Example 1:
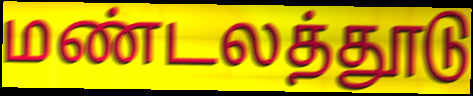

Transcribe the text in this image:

மண்டலத்தூடு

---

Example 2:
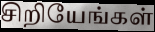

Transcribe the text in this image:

சிறியேங்கள்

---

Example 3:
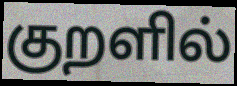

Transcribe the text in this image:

குறளில்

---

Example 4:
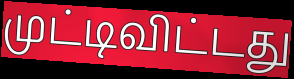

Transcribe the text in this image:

முட்டிவிட்டது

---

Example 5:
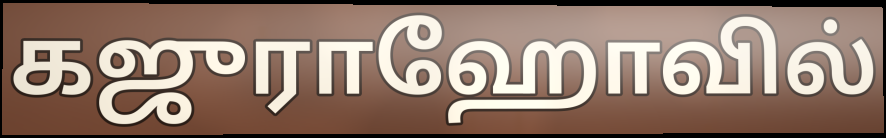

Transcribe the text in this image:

கஜுராஹோவில்